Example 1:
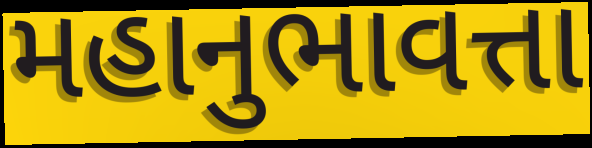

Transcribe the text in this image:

મહાનુભાવત્તા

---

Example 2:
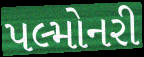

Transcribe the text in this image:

પલ્મોનરી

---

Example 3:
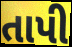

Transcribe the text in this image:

તાપી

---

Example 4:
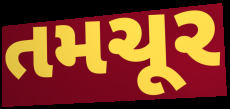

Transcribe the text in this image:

તમચૂર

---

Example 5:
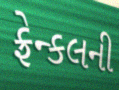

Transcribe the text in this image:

ફ્રેન્કલની